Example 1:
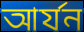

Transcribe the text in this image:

আর্যন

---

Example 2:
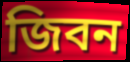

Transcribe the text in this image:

জিবন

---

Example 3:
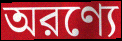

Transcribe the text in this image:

অরণ্যে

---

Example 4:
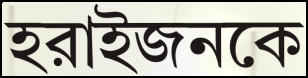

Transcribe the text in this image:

হরাইজনকে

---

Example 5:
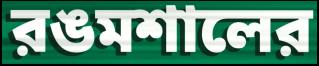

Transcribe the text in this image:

রঙমশালের